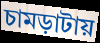
চামড়াটায়